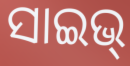
ସାଇଭ୍